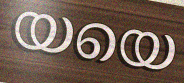
യയെ